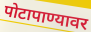
पोटापाण्यावर